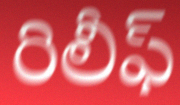
రిలీఫ్